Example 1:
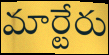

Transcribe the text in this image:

మార్టేరు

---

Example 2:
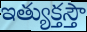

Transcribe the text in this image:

ఇత్యుక్తస్తౌ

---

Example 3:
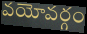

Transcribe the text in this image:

వయోవర్గం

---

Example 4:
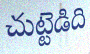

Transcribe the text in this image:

చుట్టెడిది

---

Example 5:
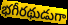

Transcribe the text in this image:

భగీరథుడుగా